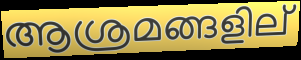
ആശ്രമങ്ങളില്